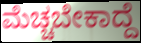
ಮೆಚ್ಚಬೇಕಾದ್ದೆ